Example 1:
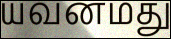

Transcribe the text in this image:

யவனமது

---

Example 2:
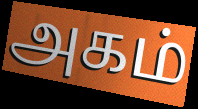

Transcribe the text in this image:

அகம்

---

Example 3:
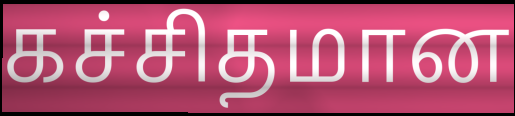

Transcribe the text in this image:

கச்சிதமான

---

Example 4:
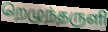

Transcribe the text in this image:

றெழுந்தருளி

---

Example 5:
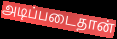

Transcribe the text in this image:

அடிப்படைதான்